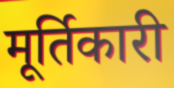
मूर्तिकारी